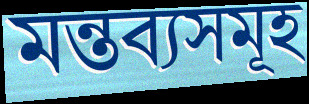
মন্তব্যসমূহ